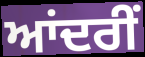
ਆਂਦਰੀਂ